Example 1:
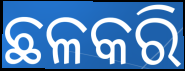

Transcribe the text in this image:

ଛଳକରି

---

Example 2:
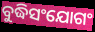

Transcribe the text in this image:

ବୁଦ୍ଧିସଂଯୋଗଂ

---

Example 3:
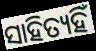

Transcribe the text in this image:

ସାହିତ୍ୟହିଁ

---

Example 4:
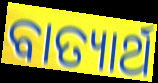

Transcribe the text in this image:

ବାତ୍ୟାର୍ଥ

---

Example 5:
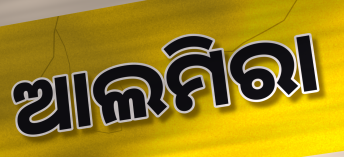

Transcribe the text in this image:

ଆଲମିରା